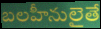
బలహీనులైతే